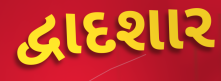
દ્વાદશાર